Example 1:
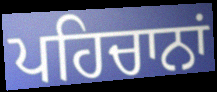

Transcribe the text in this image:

ਪਹਿਚਾਨਾਂ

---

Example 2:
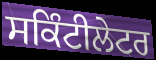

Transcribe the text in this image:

ਸਕਿੰਟੀਲੇਟਰ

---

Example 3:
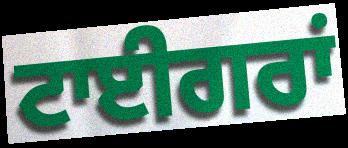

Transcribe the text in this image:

ਟਾਈਗਰਾਂ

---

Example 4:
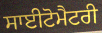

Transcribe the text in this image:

ਸਾਈਟੋਮੈਟਰੀ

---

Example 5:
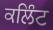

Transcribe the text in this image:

ਕਲਿੰਟ